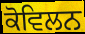
ਕੋਵਿਲਨ